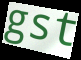
gst